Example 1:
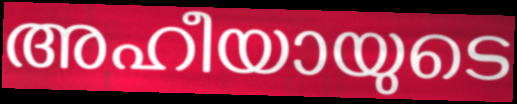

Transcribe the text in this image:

അഹീയായുടെ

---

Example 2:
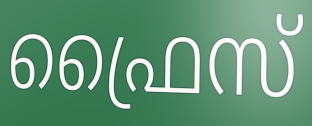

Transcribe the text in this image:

ഫ്രൈസ്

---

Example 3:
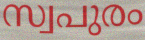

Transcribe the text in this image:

സ്വപുരം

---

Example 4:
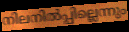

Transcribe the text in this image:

നിലനിൽപ്പില്ലെന്നും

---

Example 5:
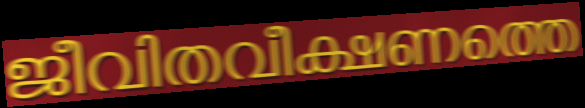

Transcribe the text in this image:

ജീവിതവീക്ഷണത്തെ